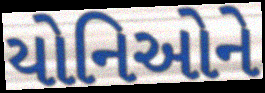
યોનિઓને